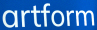
artform